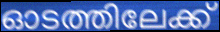
ഓടത്തിലേക്ക്